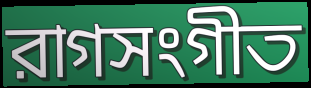
রাগসংগীত